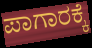
ಪಾಗಾರಕ್ಕೆ